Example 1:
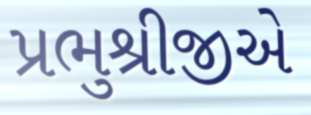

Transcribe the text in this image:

પ્રભુશ્રીજીએ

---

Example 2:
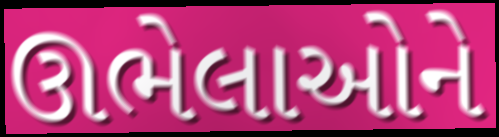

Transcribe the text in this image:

ઊભેલાઓને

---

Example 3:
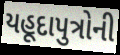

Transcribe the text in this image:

યહૂદાપુત્રોની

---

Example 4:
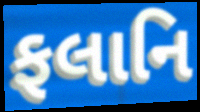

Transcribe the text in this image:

ફલાનિ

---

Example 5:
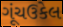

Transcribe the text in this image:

ગૂંચઉકેલ